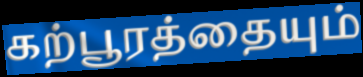
கற்பூரத்தையும்